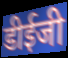
डीईजी